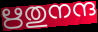
ഋതുനന്ദ